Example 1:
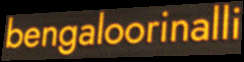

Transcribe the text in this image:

bengaloorinalli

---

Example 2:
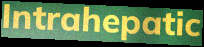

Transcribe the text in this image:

Intrahepatic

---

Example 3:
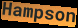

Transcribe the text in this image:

Hampson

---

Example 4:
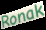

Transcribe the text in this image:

Ronak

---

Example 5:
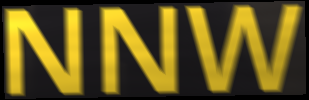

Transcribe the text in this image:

NNW